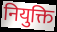
नियुक्ति